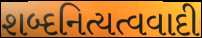
શબ્દનિત્યત્વવાદી